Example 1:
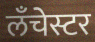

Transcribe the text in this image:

लँचेस्टर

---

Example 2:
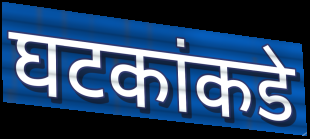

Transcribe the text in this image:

घटकांकडे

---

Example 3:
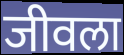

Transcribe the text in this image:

जीवला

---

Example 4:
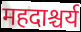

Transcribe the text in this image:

महदाश्चर्य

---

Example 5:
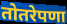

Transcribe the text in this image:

तोतरेपणा